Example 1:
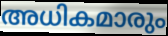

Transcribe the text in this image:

അധികമാരും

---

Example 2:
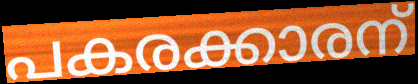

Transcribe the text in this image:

പകരക്കാരന്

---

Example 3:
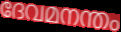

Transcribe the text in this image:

ദേവമനന്തം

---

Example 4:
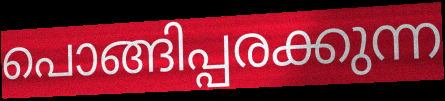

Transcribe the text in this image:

പൊങ്ങിപ്പരക്കുന്ന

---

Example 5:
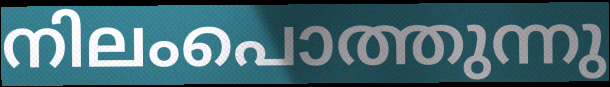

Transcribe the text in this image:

നിലംപൊത്തുന്നു